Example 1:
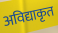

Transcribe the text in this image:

अविद्याकृत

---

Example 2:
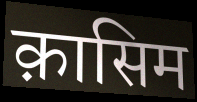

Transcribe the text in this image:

क़ासिम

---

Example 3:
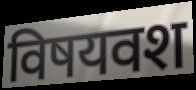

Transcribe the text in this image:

विषयवश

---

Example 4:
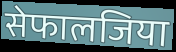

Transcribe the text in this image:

सेफालजिया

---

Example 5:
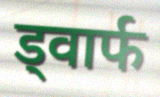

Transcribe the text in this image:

ड्वार्फ